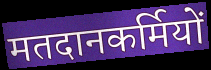
मतदानकर्मियों